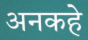
अनकहे